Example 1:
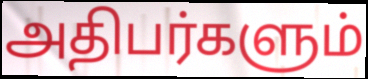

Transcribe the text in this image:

அதிபர்களும்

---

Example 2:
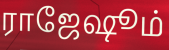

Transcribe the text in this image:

ராஜேஷூம்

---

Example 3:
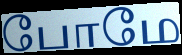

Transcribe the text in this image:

போமே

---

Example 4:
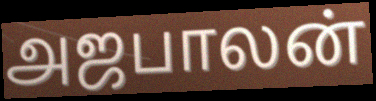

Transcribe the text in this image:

அஜபாலன்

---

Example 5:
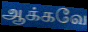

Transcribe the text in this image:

ஆக்கவே